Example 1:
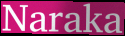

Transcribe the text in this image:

Naraka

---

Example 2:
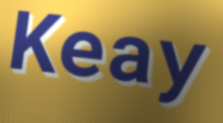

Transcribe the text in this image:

Keay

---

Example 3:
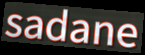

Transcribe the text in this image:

sadane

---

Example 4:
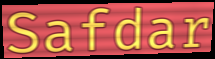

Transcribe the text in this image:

Safdar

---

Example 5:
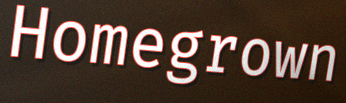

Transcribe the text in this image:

Homegrown